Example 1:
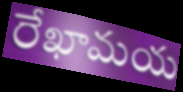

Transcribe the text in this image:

రేఖామయ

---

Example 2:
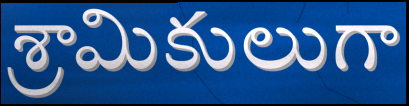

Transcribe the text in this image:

శ్రామికులుగా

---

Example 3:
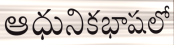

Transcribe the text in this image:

ఆధునికభాషలో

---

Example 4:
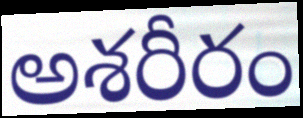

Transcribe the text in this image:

అశరీరం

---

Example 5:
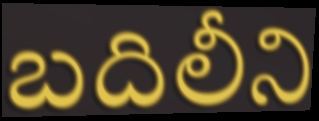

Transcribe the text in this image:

బదిలీని